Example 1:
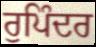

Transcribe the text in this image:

ਰੁਪਿੰਦਰ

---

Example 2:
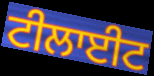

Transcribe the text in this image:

ਟੀਲਾਈਟ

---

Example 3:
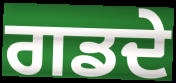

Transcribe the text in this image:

ਗਡਦੇ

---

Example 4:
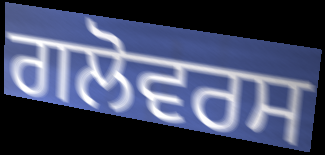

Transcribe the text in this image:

ਗਲੋਵਰਸ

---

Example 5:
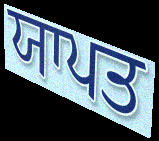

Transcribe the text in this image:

ਯਾਪਤ